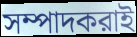
সম্পাদকরাই